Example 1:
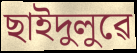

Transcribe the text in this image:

ছাইদুলুৱে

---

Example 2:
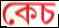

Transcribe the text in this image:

কেচ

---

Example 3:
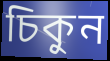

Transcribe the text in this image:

চিকুন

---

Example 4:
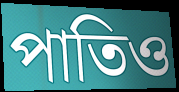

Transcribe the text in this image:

পাতিও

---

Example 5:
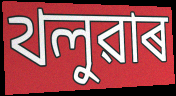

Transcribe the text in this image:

থলুৱাৰ